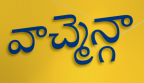
వాచ్మెన్గా